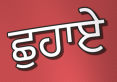
ਛੁਹਾਏ